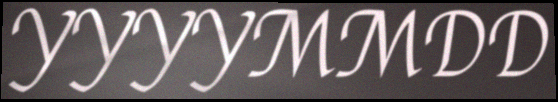
YYYYMMDD